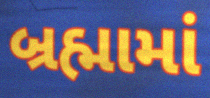
બ્રહ્મામાં